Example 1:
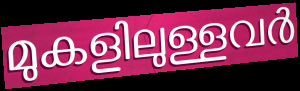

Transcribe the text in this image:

മുകളിലുള്ളവർ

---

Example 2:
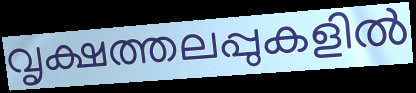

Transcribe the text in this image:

വൃക്ഷത്തലപ്പുകളിൽ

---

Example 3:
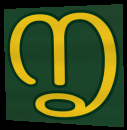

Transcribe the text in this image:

നൃ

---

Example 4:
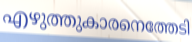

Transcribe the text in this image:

എഴുത്തുകാരനെത്തേടി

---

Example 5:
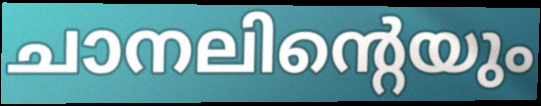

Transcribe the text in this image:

ചാനലിന്റെയും